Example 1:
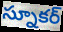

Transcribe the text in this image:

స్నూకర్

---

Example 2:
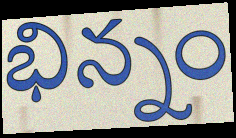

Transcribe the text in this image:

భిన్నం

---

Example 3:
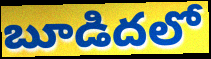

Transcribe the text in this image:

బూడిదలో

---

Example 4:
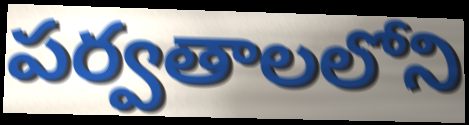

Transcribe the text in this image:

పర్వతాలలోని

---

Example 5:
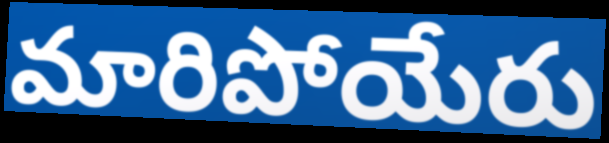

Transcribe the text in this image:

మారిపోయేరు